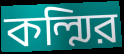
কল্মির